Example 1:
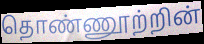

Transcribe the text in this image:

தொண்ணூற்றின்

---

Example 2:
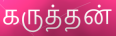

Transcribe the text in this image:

கருத்தன்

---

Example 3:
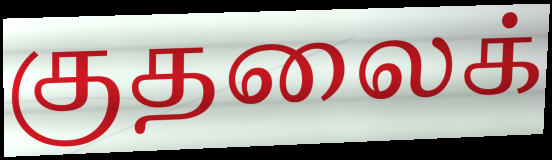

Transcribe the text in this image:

குதலைக்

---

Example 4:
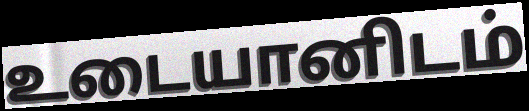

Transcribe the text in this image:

உடையானிடம்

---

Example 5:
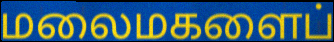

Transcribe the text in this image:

மலைமகளைப்